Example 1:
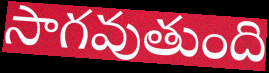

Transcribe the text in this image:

సాగవుతుంది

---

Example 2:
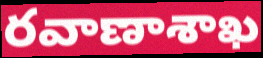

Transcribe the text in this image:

రవాణాశాఖ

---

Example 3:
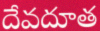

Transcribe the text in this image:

దేవదూత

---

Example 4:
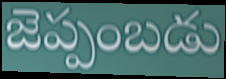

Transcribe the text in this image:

జెప్పంబడు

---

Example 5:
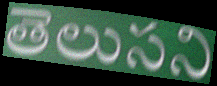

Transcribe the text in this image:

తెలుసని